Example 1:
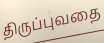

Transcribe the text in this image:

திருப்புவதை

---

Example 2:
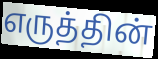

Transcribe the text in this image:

எருத்தின்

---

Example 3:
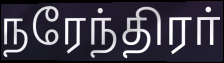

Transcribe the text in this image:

நரேந்திரர்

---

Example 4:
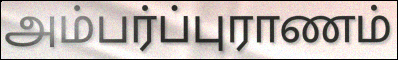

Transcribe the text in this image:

அம்பர்ப்புராணம்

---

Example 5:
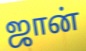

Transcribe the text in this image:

ஜான்